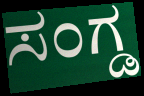
ಸಂಗ್ಡ